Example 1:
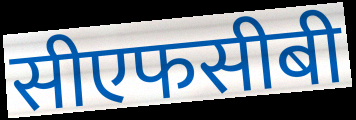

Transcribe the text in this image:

सीएफसीबी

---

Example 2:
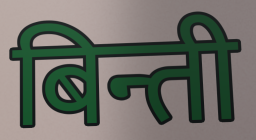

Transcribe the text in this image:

बिन्ती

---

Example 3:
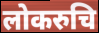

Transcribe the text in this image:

लोकरुचि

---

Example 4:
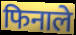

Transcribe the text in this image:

फिनाले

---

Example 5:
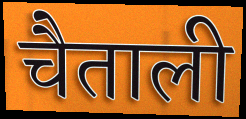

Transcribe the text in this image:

चैताली